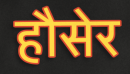
हौसेर